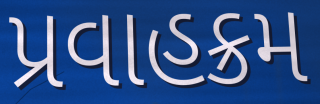
પ્રવાહક્રમ